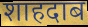
शाहदाब